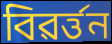
বিৱৰ্ত্তন